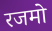
रजमो